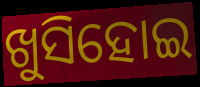
ଖୁସିହୋଇ